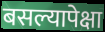
बसल्यापेक्षा